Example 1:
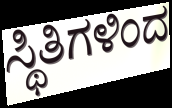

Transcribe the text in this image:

ಸ್ಥಿತಿಗಳಿಂದ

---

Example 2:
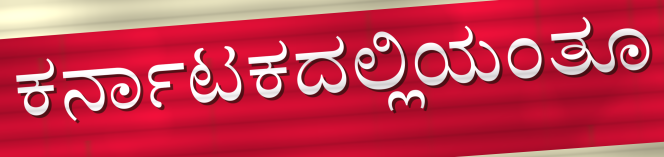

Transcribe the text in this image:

ಕರ್ನಾಟಕದಲ್ಲಿಯಂತೂ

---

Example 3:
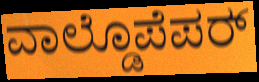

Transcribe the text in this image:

ವಾಲ್ಡೊಪೆಪರ್‍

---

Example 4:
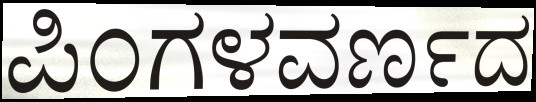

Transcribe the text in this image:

ಪಿಂಗಳವರ್ಣದ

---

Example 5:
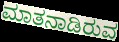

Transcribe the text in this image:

ಮಾತನಾಡಿರುವ